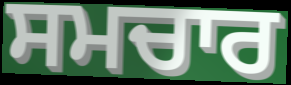
ਸਮਚਾਰ